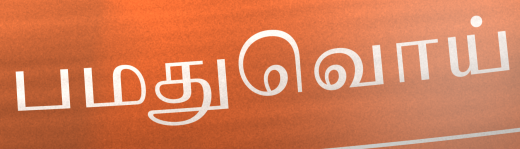
பமதுவொய்